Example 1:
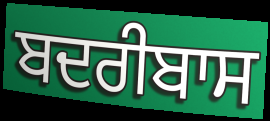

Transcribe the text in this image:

ਬਦਰੀਬਾਸ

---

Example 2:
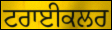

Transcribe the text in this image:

ਟਰਾਈਕਲਰ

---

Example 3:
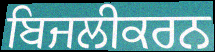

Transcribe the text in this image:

ਬਿਜਲੀਕਰਨ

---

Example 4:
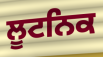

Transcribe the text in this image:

ਲੂਟਨਿਕ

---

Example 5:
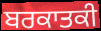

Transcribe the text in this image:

ਬਰਕਾਤਕੀ